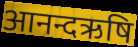
आनन्दऋषि